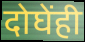
दोघेंही